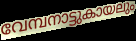
വേമ്പനാട്ടുകായലും